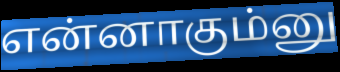
என்னாகும்னு